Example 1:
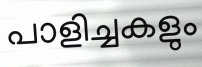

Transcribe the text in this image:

പാളിച്ചകളും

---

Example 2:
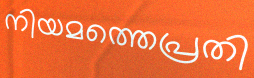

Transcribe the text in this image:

നിയമത്തെപ്രതി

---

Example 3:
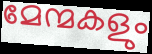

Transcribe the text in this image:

മേന്മകളും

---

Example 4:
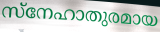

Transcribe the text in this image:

സ്നേഹാതുരമായ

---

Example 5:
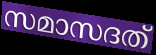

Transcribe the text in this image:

സമാസദത്